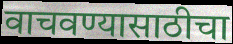
वाचवण्यासाठीचा